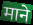
माने